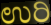
ಉರಿ